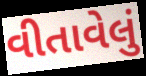
વીતાવેલું